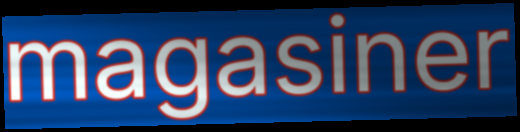
magasiner